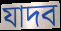
যাদব